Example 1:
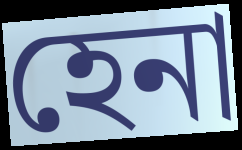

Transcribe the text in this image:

হেনা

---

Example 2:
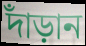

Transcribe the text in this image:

দাঁড়ান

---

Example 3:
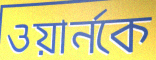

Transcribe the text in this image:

ওয়ার্নকে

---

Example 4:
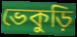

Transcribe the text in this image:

ভেকুড়ি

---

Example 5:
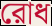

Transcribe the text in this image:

রোধ